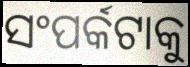
ସଂପର୍କଟାକୁ